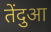
तेंदुआ